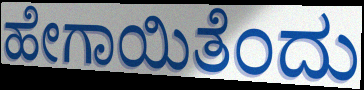
ಹೇಗಾಯಿತೆಂದು